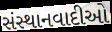
સંસ્થાનવાદીઓ